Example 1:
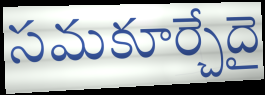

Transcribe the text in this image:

సమకూర్చేదై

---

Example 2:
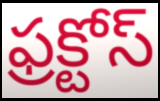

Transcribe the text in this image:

ఫ్రక్టోస్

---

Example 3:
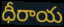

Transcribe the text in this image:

ధీరాయ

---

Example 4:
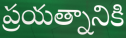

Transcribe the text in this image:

ప్రయత్నానికి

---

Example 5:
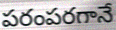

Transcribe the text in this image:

పరంపరగానే